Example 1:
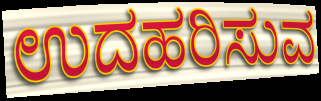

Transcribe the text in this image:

ಉದಹರಿಸುವ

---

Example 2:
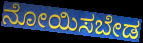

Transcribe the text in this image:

ನೋಯಿಸಬೇಡ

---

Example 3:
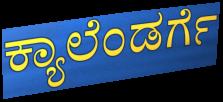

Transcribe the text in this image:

ಕ್ಯಾಲೆಂಡರ್ಗೆ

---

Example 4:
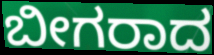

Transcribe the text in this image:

ಬೀಗರಾದ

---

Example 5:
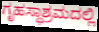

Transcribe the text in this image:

ಗೃಹಸ್ಥಾಶ್ರಮದಲ್ಲಿ